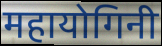
महायोगिनी